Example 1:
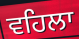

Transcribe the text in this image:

ਵਹਿਲਾ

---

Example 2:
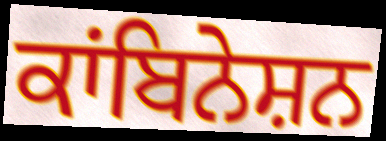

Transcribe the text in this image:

ਕਾਂਬਿਨੇਸ਼ਨ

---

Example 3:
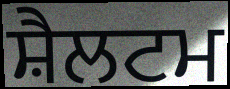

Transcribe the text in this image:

ਸ਼ੈਲਟਮ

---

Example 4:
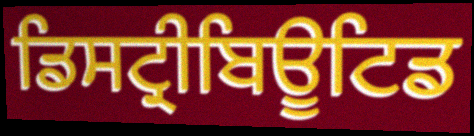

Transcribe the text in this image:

ਡਿਸਟ੍ਰੀਬਿਊਟਿਡ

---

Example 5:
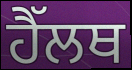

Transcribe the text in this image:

ਹੈੱਲਥ